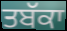
ਤਬੱਕਾ